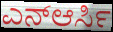
ಎನ್ಆರ್ಸಿ